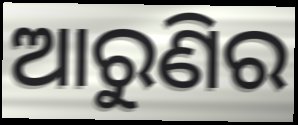
ଆରୁଣିର